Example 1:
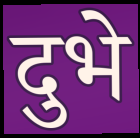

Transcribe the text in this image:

दुभे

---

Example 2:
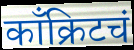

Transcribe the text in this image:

काँक्रिटचं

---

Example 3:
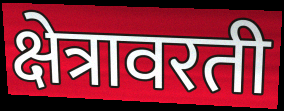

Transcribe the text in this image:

क्षेत्रावरती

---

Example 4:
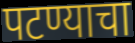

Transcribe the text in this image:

पटण्याचा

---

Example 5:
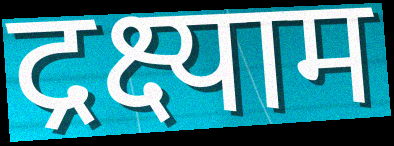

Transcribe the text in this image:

द्रक्ष्याम